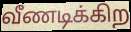
வீணடிக்கிற